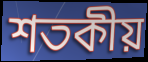
শতকীয়